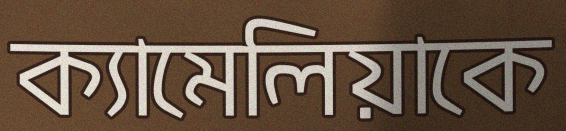
ক্যামেলিয়াকে